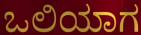
ಒಲಿಯಾಗ